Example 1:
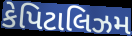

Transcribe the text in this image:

કેપિટાલિઝમ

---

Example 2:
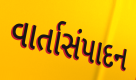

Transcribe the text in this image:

વાર્તાસંપાદન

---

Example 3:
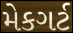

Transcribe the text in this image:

મેકગર્ટ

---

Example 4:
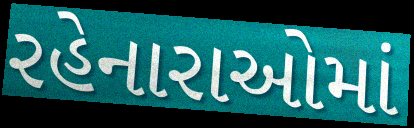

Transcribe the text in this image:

રહેનારાઓમાં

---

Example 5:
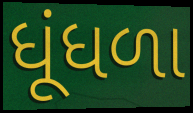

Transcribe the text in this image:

ધૂંધળા